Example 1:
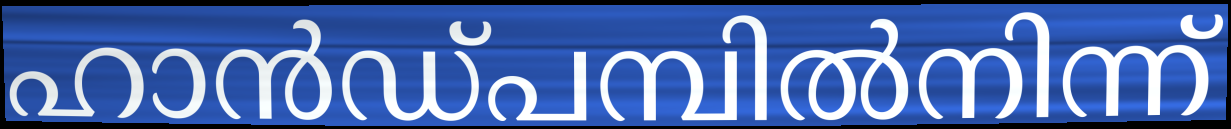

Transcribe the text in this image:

ഹാൻഡ്പമ്പിൽനിന്ന്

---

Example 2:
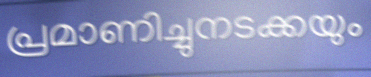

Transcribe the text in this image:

പ്രമാണിച്ചുനടക്കയും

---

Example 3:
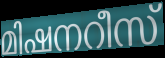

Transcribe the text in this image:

മിഷനറീസ്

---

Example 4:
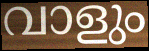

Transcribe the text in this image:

വാളും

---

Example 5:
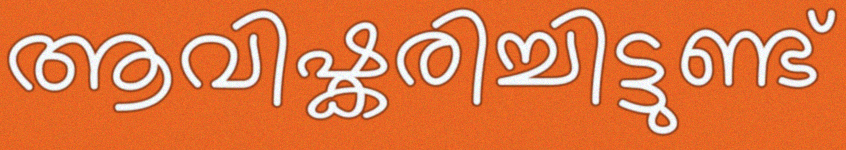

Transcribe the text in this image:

ആവിഷ്കരിച്ചിട്ടുണ്ട്